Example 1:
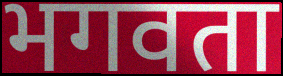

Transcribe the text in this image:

भगवता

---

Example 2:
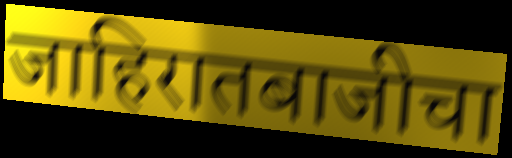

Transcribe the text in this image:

जाहिरातबाजीचा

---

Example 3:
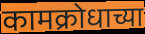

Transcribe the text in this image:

कामक्रोधाच्या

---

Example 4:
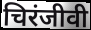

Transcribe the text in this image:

चिरंजीवी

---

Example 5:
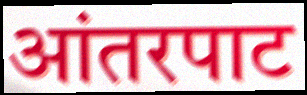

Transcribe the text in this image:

आंतरपाट